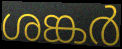
ശങ്കർ